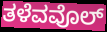
ತಳೆವವೊಲ್